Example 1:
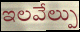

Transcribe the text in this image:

ఇలవేల్పు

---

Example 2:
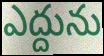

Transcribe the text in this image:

ఎద్దును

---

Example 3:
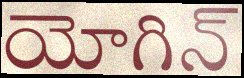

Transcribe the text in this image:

యోగిన్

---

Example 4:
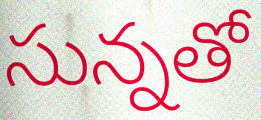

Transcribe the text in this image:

సున్నతో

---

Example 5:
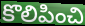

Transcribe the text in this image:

కొలిపించి